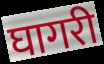
घागरी